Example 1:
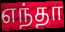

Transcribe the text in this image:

எந்தா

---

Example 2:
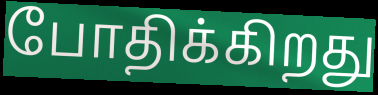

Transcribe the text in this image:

போதிக்கிறது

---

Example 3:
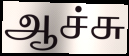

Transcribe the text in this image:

ஆச்சு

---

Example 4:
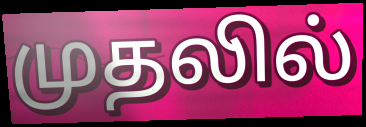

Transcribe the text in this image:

முதலில்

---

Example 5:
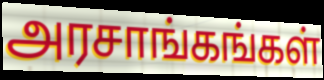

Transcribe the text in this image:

அரசாங்கங்கள்